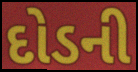
દોડની